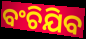
ବଂଚିଯିବ